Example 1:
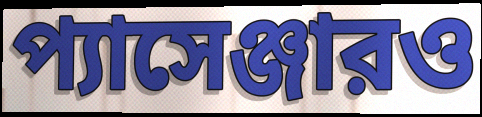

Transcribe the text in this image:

প্যাসেঞ্জারও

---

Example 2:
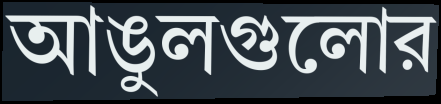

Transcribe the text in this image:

আঙুলগুলোর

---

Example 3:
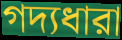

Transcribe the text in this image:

গদ্যধারা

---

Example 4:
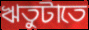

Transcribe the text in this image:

ঋতুটাতে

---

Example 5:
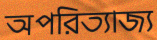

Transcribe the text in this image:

অপরিত্যাজ্য